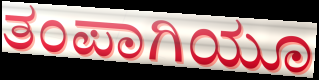
ತಂಪಾಗಿಯೂ